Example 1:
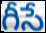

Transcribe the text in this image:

గీసే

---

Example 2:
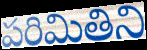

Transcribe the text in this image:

పరిమితిని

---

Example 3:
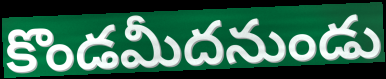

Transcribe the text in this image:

కొండమీదనుండు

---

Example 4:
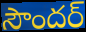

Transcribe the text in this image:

సౌందర్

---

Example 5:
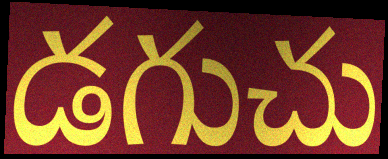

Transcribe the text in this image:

డగుచు